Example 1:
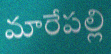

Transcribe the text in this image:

మారేపల్లి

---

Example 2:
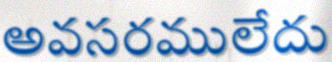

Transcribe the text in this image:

అవసరములేదు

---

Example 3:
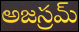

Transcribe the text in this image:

అజస్రమ్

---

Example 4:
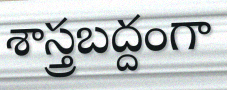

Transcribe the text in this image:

శాస్త్రబద్దంగా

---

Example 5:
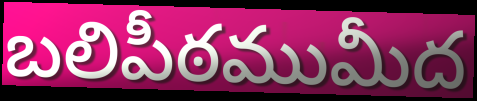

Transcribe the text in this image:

బలిపీఠముమీద